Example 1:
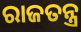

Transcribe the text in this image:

ରାଜତନ୍ତ୍ର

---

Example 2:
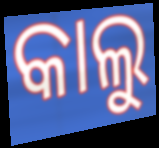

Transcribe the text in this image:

କାଲୁ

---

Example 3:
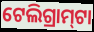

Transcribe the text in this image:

ଟେଲିଗ୍ରାମ୍‍ଟା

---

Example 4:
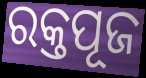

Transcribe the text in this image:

ରକ୍ତପୂଜ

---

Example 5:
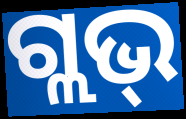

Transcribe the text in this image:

ଗ୍ଲଭ୍